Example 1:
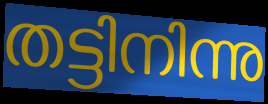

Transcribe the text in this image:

തട്ടിനിന്നു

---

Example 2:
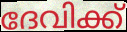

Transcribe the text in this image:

ദേവിക്ക്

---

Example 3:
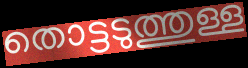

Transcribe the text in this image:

തൊട്ടടുത്തുള്ള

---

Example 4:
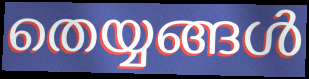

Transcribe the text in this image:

തെയ്യങ്ങൾ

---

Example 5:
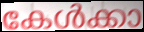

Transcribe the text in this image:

കേൾക്കാ